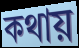
কথায়